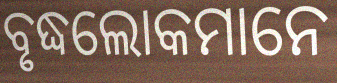
ବୃଦ୍ଧଲୋକମାନେ